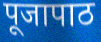
पूजापाठ